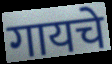
गायचे